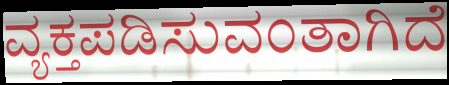
ವ್ಯಕ್ತಪಡಿಸುವಂತಾಗಿದೆ